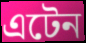
এটেন